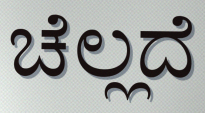
ಚೆಲ್ಲದೆ